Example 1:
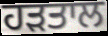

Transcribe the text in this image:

ਹੜਤਾਲ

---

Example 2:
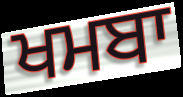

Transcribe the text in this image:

ਖਮਬਾ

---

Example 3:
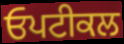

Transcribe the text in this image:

ਓਪਟੀਕਲ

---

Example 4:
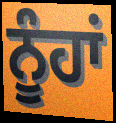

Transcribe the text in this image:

ਨੂੰਹਾਂ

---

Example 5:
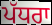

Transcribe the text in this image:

ਪੱਧਰਾ